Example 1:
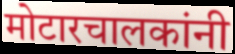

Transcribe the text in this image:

मोटारचालकांनी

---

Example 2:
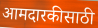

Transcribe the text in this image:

आमदारकीसाठी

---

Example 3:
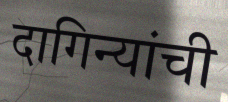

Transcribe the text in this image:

दागिन्यांची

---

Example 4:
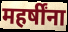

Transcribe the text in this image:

महर्षींना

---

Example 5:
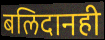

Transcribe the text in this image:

बलिदानही